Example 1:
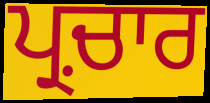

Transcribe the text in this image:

ਪ਼੍ਰਚਾਰ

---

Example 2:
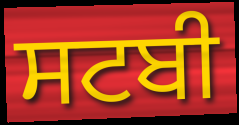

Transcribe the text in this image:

ਸਟਬੀ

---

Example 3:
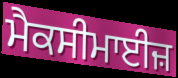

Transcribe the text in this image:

ਮੈਕਸੀਮਾਈਜ਼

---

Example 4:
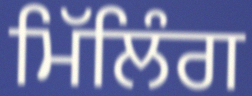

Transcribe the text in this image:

ਮਿੱਲਿੰਗ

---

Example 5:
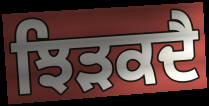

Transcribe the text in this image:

ਝਿੜਕਦੈ